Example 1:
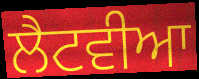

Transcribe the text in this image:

ਲੈਟਵੀਆ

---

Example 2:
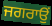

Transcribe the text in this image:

ਜਗਰਾਉਂ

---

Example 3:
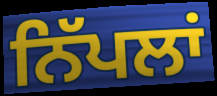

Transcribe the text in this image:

ਨਿੱਪਲਾਂ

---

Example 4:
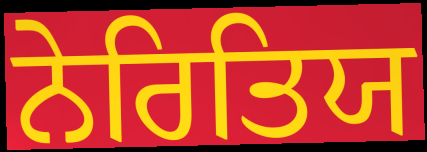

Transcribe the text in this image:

ਨੇਰਿਤਿਯ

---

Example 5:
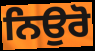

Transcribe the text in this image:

ਨਿਉਰੋ